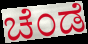
ಚೆಂಡೆ